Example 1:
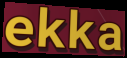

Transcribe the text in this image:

ekka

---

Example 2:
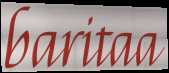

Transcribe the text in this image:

baritaa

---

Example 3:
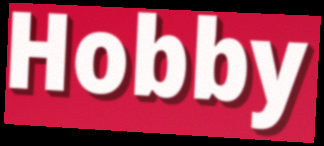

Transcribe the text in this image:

Hobby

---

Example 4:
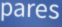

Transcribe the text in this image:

pares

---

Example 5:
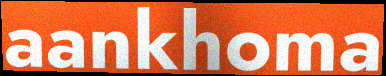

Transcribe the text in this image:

aankhoma